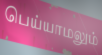
பெய்யாமலும்